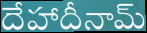
దేహాదీనామ్